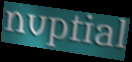
nuptial